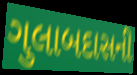
ગુલાબદાસની